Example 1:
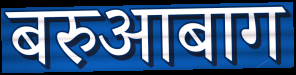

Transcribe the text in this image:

बरुआबाग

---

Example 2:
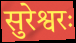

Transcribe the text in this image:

सुरेश्वरः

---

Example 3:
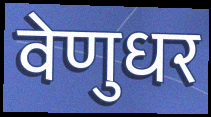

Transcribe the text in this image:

वेणुधर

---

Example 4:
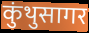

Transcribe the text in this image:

कुंथुसागर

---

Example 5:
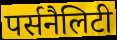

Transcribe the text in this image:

पर्सनैलिटी